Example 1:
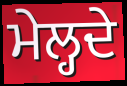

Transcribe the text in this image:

ਮੇਲ੍ਹਦੇ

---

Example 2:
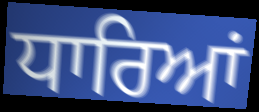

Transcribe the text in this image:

ਧਾਰਿਆਂ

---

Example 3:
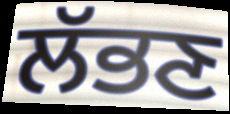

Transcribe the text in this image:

ਲੱਭਣ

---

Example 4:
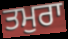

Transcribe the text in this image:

ਤਮੁਰਾ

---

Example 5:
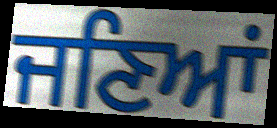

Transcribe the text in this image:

ਜਣਿਆਂ